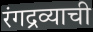
रंगद्रव्याची